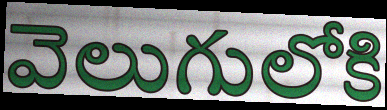
వెలుగులోకి